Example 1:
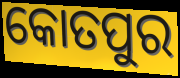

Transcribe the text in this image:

କୋତପୁର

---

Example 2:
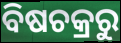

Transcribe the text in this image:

ବିଷଚକ୍ରରୁ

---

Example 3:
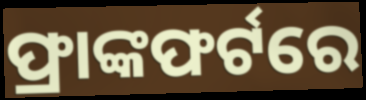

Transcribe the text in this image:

ଫ୍ରାଙ୍କଫର୍ଟରେ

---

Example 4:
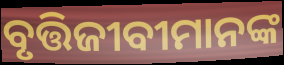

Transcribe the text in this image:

ବୃତ୍ତିଜୀବୀମାନଙ୍କ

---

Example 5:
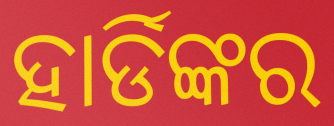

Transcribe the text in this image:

ହାର୍ଡିଙ୍କର